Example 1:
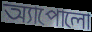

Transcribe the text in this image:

অ্যাপোলো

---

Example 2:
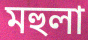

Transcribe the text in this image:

মহুলা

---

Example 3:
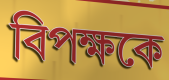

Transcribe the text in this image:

বিপক্ষকে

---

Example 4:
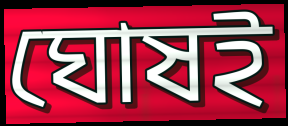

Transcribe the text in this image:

ঘোষই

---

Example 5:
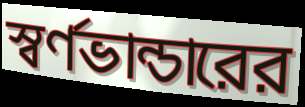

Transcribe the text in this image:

স্বর্ণভান্ডারের